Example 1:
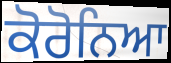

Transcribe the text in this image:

ਕੋਰੋਨਿਆ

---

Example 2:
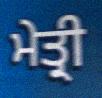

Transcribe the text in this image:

ਮੇਤ੍ਰੀ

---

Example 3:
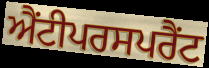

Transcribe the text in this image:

ਐਂਟੀਪਰਸਪਰੈਂਟ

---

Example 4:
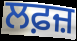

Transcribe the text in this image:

ਲਫ਼ਜ਼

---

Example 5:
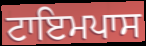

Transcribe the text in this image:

ਟਾਇਮਪਾਸ